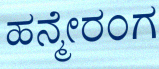
ಹನ್ಮೇರಂಗ